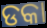
ଡକା